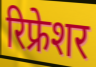
रिफ्रेशर